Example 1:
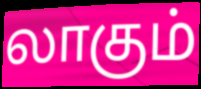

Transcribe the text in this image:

லாகும்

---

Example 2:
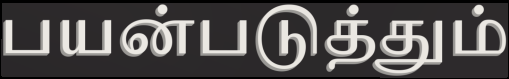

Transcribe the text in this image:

பயன்படுத்தும்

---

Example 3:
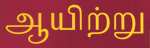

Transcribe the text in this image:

ஆயிற்று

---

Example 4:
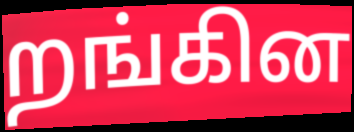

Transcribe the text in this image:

றங்கின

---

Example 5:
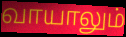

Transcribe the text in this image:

வாயாலும்